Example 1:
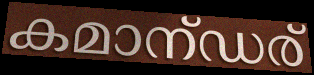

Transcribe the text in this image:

കമാന്ഡര്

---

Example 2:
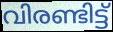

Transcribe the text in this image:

വിരണ്ടിട്ട്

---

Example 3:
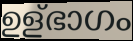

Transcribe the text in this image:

ഉള്ഭാഗം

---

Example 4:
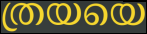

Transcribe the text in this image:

ത്രയയെ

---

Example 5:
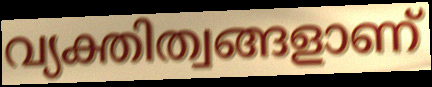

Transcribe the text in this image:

വ്യക്തിത്വങ്ങളാണ്